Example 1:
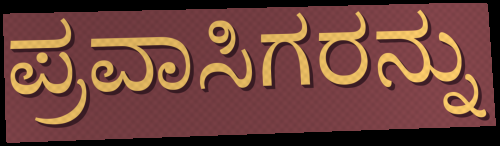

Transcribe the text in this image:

ಪ್ರವಾಸಿಗರನ್ನು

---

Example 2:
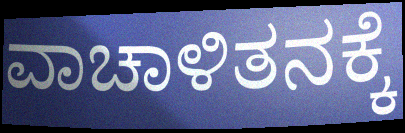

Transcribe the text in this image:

ವಾಚಾಳಿತನಕ್ಕೆ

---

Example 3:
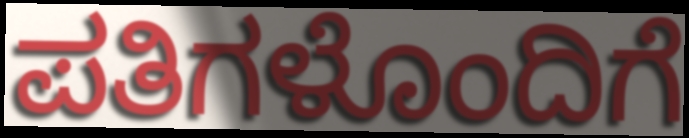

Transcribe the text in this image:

ಪತಿಗಳೊಂದಿಗೆ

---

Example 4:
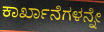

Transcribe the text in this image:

ಕಾರ್ಖಾನೆಗಳನ್ನೇ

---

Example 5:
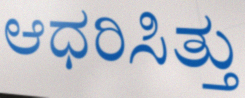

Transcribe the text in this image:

ಆಧರಿಸಿತ್ತು